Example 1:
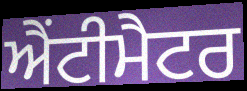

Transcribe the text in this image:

ਐਂਟੀਮੈਟਰ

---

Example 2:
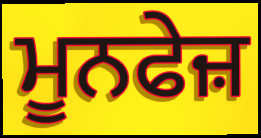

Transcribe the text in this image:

ਮੂਨਫੇਜ਼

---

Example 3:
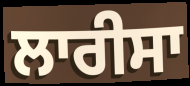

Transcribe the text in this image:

ਲਾਰੀਸਾ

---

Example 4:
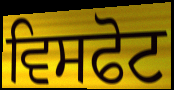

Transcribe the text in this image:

ਵਿਸਫੋਟ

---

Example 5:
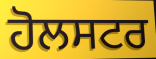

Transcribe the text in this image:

ਹੋਲਸਟਰ